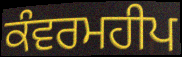
ਕੰਵਰਮਹੀਪ